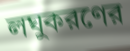
লঘুকরণের